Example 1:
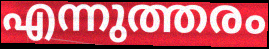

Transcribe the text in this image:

എന്നുത്തരം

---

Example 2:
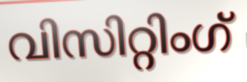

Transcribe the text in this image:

വിസിറ്റിംഗ്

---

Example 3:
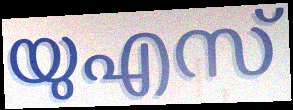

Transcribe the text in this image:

യുഎസ്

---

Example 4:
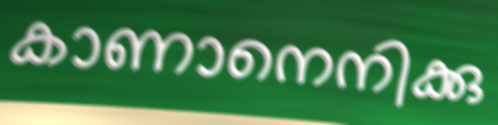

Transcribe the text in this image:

കാണാനെനിക്കു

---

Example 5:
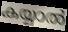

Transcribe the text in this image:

കയ്യാൽ